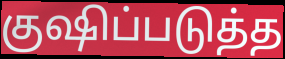
குஷிப்படுத்த